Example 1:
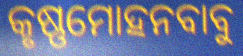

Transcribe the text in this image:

କୃଷ୍ଣମୋହନବାବୁ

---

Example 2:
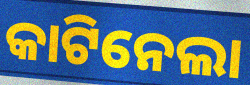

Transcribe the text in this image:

କାଟିନେଲା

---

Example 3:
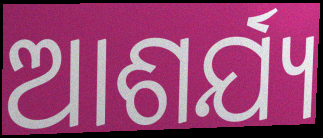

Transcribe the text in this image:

ଆଶର୍ଯ୍ୟ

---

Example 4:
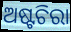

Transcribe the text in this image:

ଅଷ୍ଟଚିରା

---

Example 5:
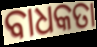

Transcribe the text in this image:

ବାଧକତା